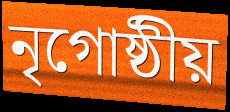
নৃগোষ্ঠীয়